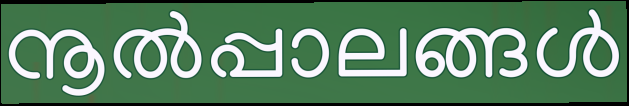
നൂൽപ്പാലങ്ങൾ